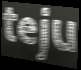
teju